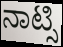
ನಾಟ್ಸಿ